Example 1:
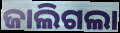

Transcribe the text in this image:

ଜାଲିଗଲା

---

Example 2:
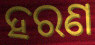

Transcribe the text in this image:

ହରଣ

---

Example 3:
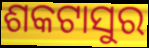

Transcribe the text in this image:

ଶକଟାସୁର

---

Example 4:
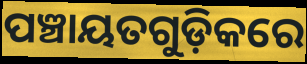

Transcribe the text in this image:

ପଞ୍ଚାୟତଗୁଡ଼ିକରେ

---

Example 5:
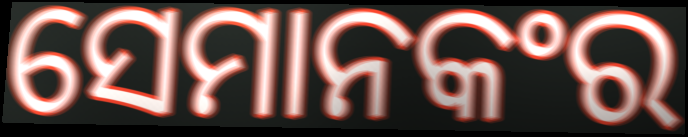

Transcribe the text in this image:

ସେମାନକଂର